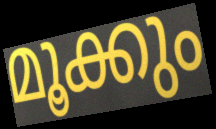
മൂക്കും